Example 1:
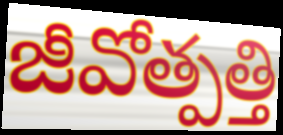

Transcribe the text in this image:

జీవోత్పత్తి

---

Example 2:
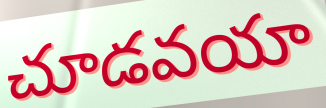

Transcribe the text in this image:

చూడవయా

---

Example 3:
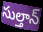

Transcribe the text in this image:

సుల్తాన్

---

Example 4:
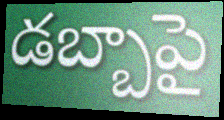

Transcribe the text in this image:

డబ్బాపై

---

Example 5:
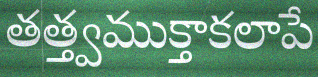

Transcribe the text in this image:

తత్త్వముక్తాకలాపే